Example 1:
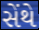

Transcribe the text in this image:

સેંથે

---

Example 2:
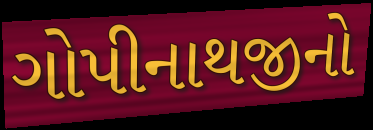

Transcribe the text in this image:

ગોપીનાથજીનો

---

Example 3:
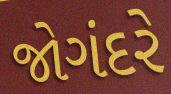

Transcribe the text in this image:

જોગંદરે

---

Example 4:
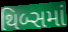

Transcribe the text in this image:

થિબ્સમાં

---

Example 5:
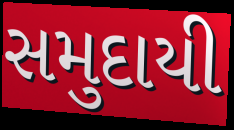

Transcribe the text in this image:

સમુદાયી